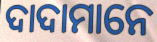
ଦାଦାମାନେ